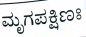
ಮೃಗಪಕ್ಷಿಣಃ